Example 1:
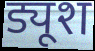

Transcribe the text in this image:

ड्यूश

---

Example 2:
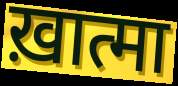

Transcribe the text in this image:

ख़ात्मा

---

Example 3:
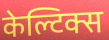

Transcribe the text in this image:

केल्टिक्स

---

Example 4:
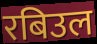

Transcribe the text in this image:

रबिउल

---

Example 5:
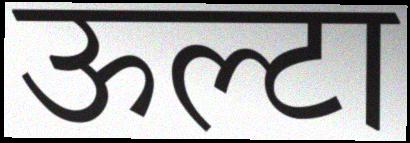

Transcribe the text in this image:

ऊल्टा